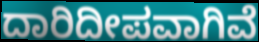
ದಾರಿದೀಪವಾಗಿವೆ